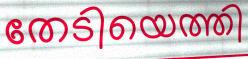
തേടിയെത്തി